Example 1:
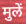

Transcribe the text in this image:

मुलें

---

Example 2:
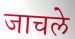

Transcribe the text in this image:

जाचले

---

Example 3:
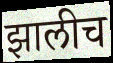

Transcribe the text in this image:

झालीच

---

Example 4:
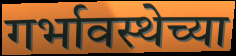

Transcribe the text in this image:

गर्भावस्थेच्या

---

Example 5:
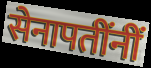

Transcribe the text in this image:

सेनापतींनीं